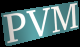
PVM